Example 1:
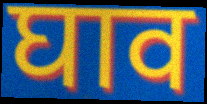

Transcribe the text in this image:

घाव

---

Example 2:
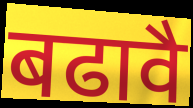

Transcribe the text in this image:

बढावै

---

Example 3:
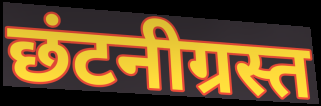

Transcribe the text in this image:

छंटनीग्रस्त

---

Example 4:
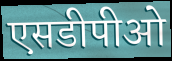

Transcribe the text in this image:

एसडीपीओ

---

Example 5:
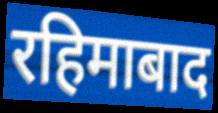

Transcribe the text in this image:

रहिमाबाद